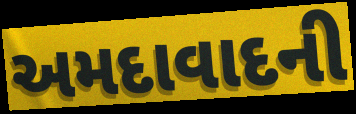
અમદાવાદની